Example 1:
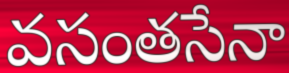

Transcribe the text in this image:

వసంతసేనా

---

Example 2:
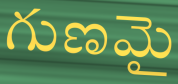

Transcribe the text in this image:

గుణమై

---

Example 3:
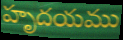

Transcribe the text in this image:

హృదయము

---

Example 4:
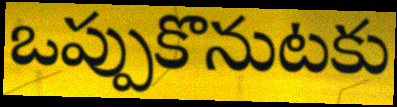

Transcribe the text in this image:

ఒప్పుకొనుటకు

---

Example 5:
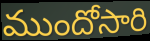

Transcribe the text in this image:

ముందోసారి